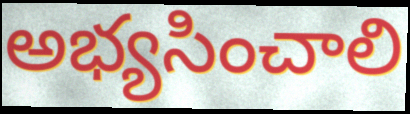
అభ్యసించాలి